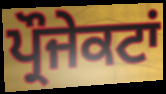
ਪ੍ਰੌਜੇਕਟਾਂ